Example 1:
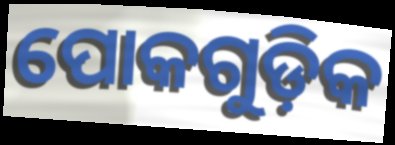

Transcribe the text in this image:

ପୋକଗୁଡ଼ିକ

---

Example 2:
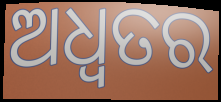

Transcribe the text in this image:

ଅଧ୍ଵତର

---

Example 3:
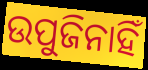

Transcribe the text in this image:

ଉପୁଜିନାହିଁ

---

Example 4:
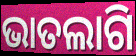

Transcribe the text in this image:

ଭାତଲାଗି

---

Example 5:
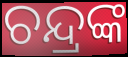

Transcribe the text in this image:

ଚନ୍ଦ୍ରଙ୍କ